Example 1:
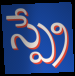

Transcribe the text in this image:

స్ప్రే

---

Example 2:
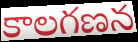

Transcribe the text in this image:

కాలగణన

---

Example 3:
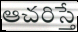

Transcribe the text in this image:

ఆచరిస్తే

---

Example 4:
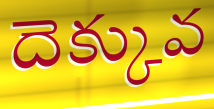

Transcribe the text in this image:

దెక్కువ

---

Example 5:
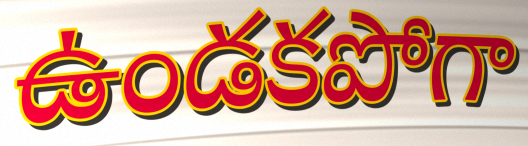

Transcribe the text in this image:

ఉండకపోగా